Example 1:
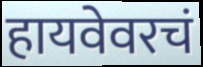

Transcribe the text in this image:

हायवेवरचं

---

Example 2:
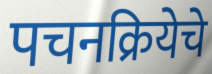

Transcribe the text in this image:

पचनक्रियेचे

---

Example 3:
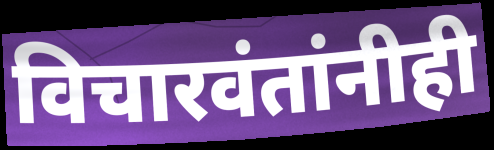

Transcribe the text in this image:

विचारवंतांनीही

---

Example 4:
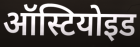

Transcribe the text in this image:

ऑस्टियोइड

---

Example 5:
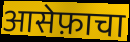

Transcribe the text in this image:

आसेफ़ाचा